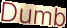
Dumb